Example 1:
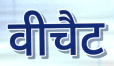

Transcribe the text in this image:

वीचैट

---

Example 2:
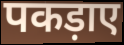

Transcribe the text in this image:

पकड़ाए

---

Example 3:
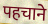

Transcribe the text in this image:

पहचाने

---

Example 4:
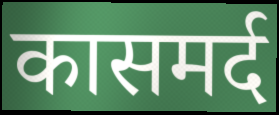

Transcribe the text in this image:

कासमर्द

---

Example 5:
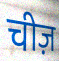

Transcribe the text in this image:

चीज़